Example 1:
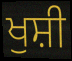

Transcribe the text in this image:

ਖੁਸ਼ੀ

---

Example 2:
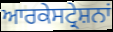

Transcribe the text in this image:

ਆਰਕੇਸਟ੍ਰੇਸ਼ਨਾਂ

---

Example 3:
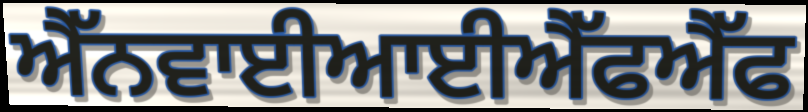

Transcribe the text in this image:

ਐੱਨਵਾਈਆਈਐੱਫਐੱਫ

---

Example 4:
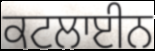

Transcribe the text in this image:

ਕਟਲਾਈਨ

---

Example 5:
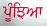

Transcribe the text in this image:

ਪੂੰਝਿਆ